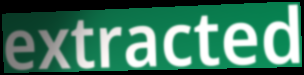
extracted